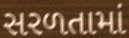
સરળતામાં